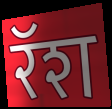
रॅश